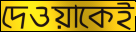
দেওয়াকেই